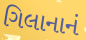
ગિલાનાનં